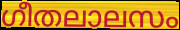
ഗീതലാലസം